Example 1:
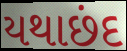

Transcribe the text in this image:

યથાછંદ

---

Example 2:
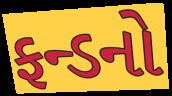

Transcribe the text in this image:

ફન્ડનો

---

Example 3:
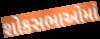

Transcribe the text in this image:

શોકસભાઓમાં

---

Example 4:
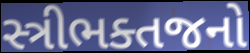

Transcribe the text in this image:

સ્ત્રીભક્તજનો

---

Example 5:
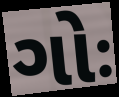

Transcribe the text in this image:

ગોઃ